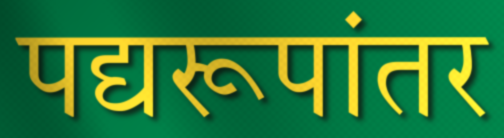
पद्यरूपांतर